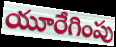
యూరేగింపు